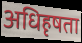
अधिहृषता